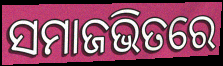
ସମାଜଭିତରେ